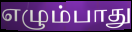
எழும்பாது